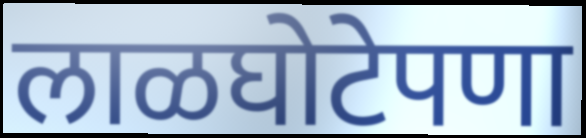
लाळघोटेपणा